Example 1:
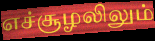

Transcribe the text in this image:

எச்சூழலிலும்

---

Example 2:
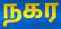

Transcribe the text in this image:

நகர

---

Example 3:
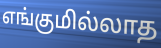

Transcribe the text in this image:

எங்குமில்லாத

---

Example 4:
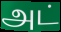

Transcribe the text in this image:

அட்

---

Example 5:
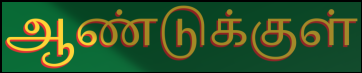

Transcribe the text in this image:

ஆண்டுக்குள்